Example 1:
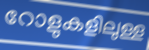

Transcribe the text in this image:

റോളുകളിലുള്ള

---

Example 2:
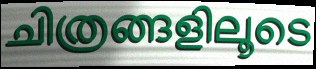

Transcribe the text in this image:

ചിത്രങ്ങളിലൂടെ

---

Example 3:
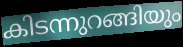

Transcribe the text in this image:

കിടന്നുറങ്ങിയും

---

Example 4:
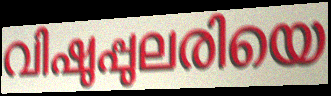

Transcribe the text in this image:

വിഷുപ്പുലരിയെ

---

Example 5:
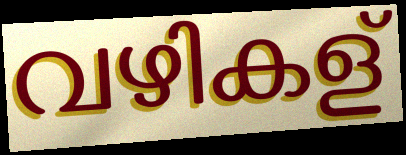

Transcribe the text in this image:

വഴികള്